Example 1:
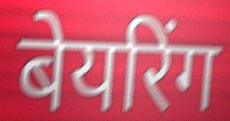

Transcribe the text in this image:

बेयरिंग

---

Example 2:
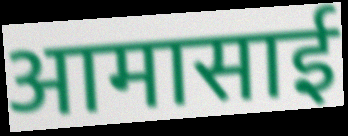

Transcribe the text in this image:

आमासाई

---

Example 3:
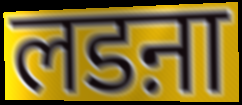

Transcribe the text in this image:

लडऩा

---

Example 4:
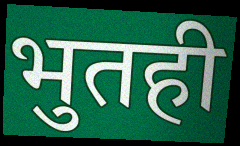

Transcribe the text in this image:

भुतही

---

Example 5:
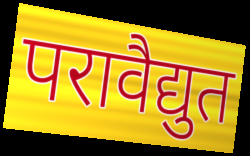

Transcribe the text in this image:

परावैद्युत